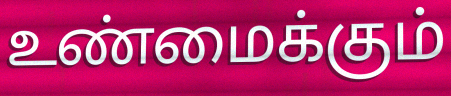
உண்மைக்கும்